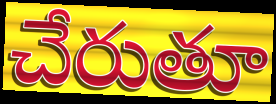
చేరుతూ